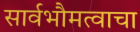
सार्वभौमत्वाचा